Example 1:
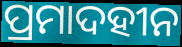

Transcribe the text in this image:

ପ୍ରମାଦହୀନ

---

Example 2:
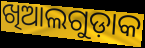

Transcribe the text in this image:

ଖିଆଲଗୁଡ଼ାକ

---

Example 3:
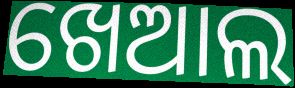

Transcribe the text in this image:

ଖେଆଲ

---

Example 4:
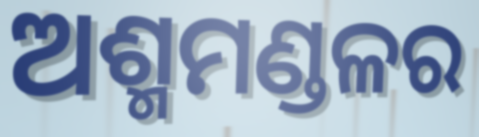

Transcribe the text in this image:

ଅଶ୍ମମଣ୍ଡଳର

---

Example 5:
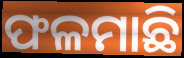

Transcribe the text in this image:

ଫଳମାଛି